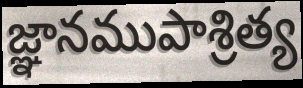
జ్ఞానముపాశ్రిత్య